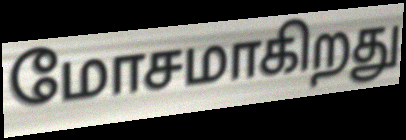
மோசமாகிறது